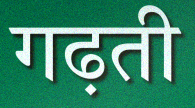
गढ़ती